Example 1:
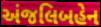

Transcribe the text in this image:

અંજલિબહેન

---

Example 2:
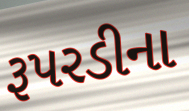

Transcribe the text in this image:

રૂપરડીના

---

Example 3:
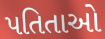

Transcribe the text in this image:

પતિતાઓ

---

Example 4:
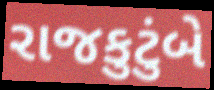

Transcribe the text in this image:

રાજકુટુંબે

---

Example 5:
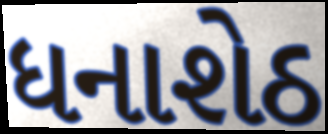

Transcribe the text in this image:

ધનાશેઠ